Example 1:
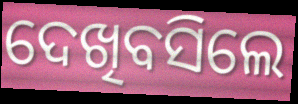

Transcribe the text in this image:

ଦେଖିବସିଲେ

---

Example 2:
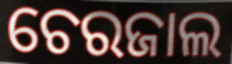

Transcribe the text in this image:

ଚେରଜାଲ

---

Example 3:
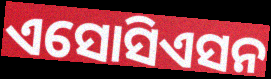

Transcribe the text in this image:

ଏସୋସିଏସନ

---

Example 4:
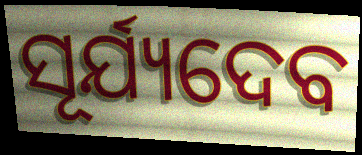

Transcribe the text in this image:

ସୂର୍ଯ୍ୟଦେବ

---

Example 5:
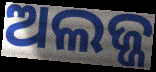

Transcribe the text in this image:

ଅଲଜ୍ଜ